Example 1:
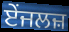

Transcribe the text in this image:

ਏਂਜਲਜ਼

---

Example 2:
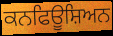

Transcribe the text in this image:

ਕਨਫਿਊਸ਼ਿਅਨ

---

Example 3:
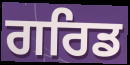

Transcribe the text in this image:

ਗਰਿਡ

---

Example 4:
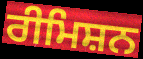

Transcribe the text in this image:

ਰੀਮਿਸ਼ਨ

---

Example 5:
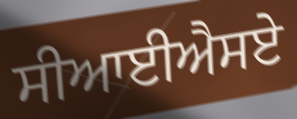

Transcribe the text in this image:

ਸੀਆਈਐਸਏ